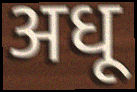
अधू